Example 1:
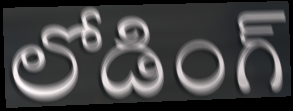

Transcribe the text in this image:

లోడింగ్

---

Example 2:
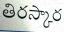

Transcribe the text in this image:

తిరస్కార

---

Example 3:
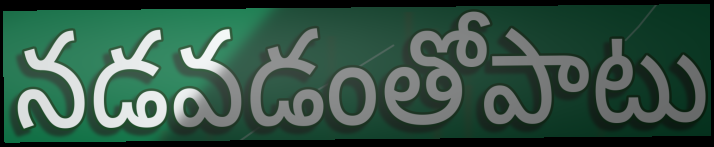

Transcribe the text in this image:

నడవడంతోపాటు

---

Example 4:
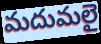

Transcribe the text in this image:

మదుమలై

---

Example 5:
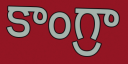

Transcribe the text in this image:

కాంగ్రా